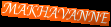
MAKHAVANNE